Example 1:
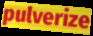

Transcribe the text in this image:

pulverize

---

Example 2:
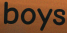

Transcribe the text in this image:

boys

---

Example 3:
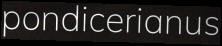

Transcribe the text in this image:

pondicerianus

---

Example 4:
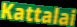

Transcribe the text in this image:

Kattalai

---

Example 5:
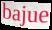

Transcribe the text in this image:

bajue